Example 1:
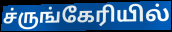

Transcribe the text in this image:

ச்ருங்கேரியில்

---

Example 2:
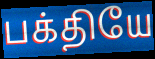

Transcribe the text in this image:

பக்தியே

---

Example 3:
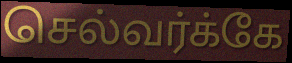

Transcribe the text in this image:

செல்வர்க்கே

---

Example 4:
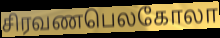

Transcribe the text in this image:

சிரவணபெலகோலா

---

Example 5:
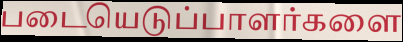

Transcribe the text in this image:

படையெடுப்பாளர்களை